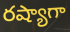
రష్యాగా